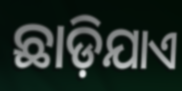
ଛାଡ଼ିଯାଏ